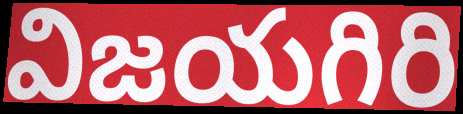
విజయగిరి